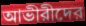
আভীরীদের